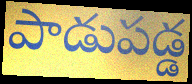
పాడుపడ్డ